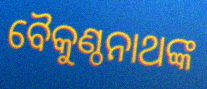
ବୈକୁଣ୍ଠନାଥଙ୍କ